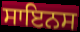
ਸਾਇਨਸ